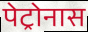
पेट्रोनास